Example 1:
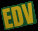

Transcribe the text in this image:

EDV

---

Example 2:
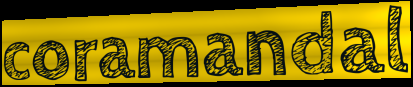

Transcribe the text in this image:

coramandal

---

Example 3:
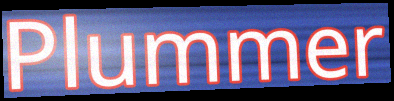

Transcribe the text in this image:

Plummer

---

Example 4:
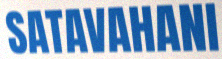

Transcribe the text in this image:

SATAVAHANI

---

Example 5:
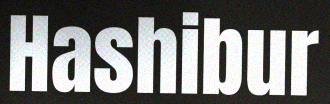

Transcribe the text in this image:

Hashibur